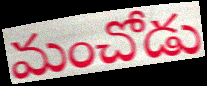
మంచోడు